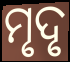
ମୃଦୃ